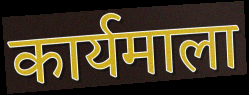
कार्यमाला